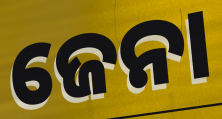
ଜେନା